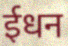
ईधन